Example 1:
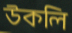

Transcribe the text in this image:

উকলি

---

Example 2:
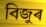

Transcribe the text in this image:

বিজুৰ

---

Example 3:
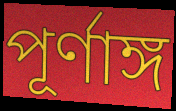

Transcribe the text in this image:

পূৰ্ণাঙ্গ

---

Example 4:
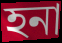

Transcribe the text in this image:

হনা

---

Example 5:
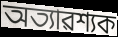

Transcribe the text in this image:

অত্যাৱশ্যক